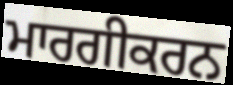
ਮਾਰਗੀਕਰਨ